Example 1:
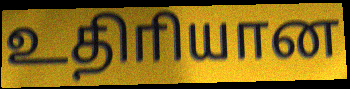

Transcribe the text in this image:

உதிரியான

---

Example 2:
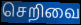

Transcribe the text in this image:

செறிவை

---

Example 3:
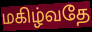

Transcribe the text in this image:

மகிழ்வதே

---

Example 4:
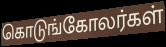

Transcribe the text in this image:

கொடுங்கோலர்கள்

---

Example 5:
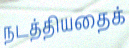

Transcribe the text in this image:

நடத்தியதைக்